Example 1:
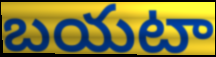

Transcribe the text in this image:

బయటా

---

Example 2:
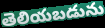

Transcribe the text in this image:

తెలియబడును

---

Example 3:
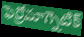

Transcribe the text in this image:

ఫెర్రోమాగ్నెటిక్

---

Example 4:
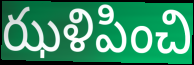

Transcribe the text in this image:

ఝళిపించి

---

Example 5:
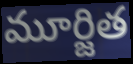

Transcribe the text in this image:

మూర్జిత